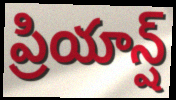
ప్రియాన్ష్